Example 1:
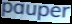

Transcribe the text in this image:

pauper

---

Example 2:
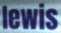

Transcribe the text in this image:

lewis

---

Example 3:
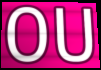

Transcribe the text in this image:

OU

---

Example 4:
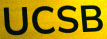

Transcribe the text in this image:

UCSB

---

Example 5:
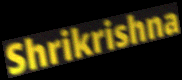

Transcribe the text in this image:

Shrikrishna